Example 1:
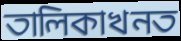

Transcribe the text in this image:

তালিকাখনত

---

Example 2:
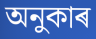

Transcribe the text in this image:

অনুকাৰ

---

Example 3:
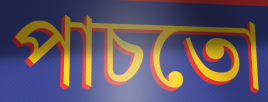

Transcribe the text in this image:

পাচতো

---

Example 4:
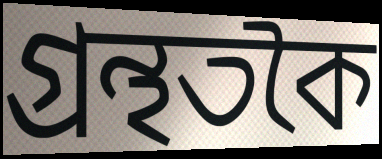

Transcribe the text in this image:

গ্ৰন্থতকৈ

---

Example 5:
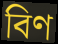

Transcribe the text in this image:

বিণ